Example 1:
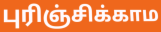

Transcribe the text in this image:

புரிஞ்சிக்காம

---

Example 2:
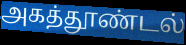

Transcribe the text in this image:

அகத்தூண்டல்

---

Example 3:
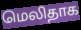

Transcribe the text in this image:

மெலிதாக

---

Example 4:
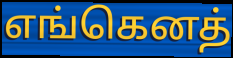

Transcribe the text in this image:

எங்கெனத்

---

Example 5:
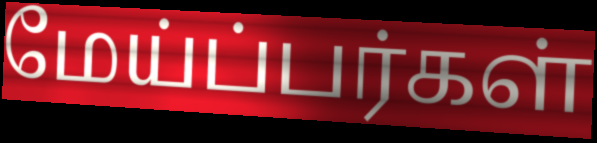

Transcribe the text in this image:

மேய்ப்பர்கள்